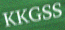
KKGSS